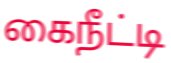
கைநீட்டி